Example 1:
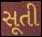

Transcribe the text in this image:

સૂતી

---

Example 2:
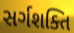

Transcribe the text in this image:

સર્ગશક્તિ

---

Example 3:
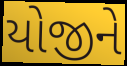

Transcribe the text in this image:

યોજીને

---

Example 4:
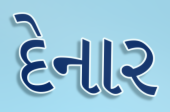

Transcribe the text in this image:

દેનાર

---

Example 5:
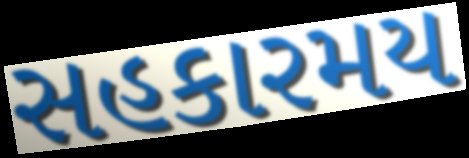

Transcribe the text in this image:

સહકારમય